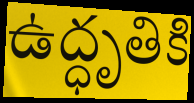
ఉద్ధృతికి